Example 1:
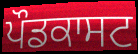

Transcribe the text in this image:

ਪੌਡਕਾਸਟ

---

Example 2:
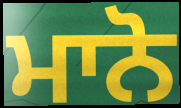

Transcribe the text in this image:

ਮਾਨੋ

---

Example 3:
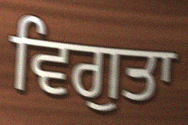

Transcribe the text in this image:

ਵਿਗੁਤਾ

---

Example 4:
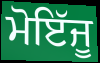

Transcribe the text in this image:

ਮੋਇੱਜੂ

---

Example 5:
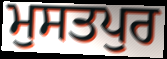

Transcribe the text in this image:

ਮੁਸਤਪੁਰ